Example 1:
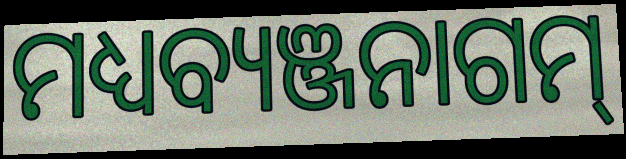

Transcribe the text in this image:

ମଧ୍ୟବ୍ୟଞ୍ଜନାଗମ୍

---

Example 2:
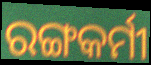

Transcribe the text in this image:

ରଙ୍ଗକର୍ମୀ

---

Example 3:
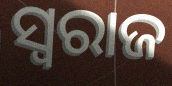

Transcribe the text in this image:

ସ୍ଵରାଜ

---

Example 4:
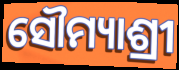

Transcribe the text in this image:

ସୌମ୍ୟାଶ୍ରୀ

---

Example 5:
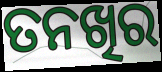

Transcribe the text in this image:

ତନଖିର